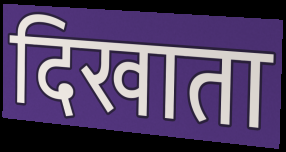
दिखाता